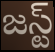
జస్ట్